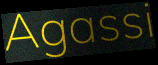
Agassi